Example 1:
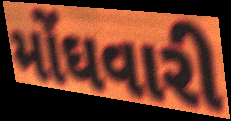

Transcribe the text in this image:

મોંઘવારી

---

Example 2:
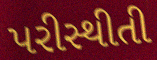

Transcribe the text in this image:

પરીસ્થીતી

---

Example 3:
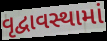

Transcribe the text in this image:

વૃદ્વાવસ્થામાં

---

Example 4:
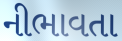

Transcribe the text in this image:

નીભાવતા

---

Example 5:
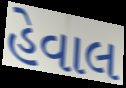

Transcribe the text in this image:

હેવાલ